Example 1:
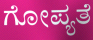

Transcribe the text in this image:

ಗೋಪ್ಯತೆ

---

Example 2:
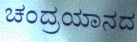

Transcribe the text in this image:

ಚಂದ್ರಯಾನದ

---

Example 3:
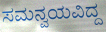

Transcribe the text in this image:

ಸಮನ್ವಯವಿದ್ದ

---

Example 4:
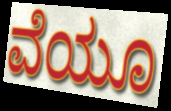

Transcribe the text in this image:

ವೆಯೂ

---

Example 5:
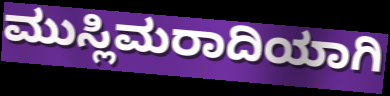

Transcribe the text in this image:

ಮುಸ್ಲಿಮರಾದಿಯಾಗಿ